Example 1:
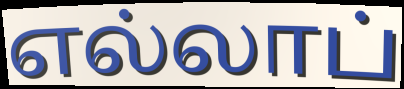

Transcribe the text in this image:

எல்லாப்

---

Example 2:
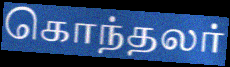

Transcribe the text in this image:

கொந்தலர்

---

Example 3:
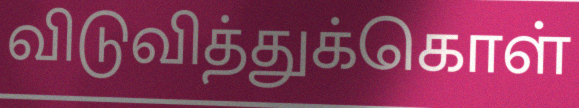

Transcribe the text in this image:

விடுவித்துக்கொள்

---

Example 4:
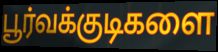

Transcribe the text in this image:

பூர்வக்குடிகளை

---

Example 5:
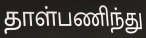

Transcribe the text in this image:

தாள்பணிந்து